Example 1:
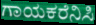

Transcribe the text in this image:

ಗಾಯಕರೆನಿಸಿ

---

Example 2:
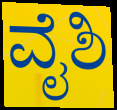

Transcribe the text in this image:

ವೈಶಿ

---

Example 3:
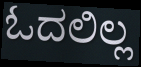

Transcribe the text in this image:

ಓದಲಿಲ್ಲ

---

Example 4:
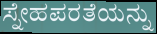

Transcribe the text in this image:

ಸ್ನೇಹಪರತೆಯನ್ನು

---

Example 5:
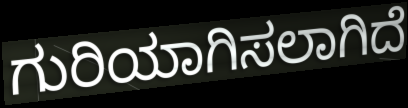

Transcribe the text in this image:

ಗುರಿಯಾಗಿಸಲಾಗಿದೆ